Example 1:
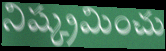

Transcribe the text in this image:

నిష్క్రమించు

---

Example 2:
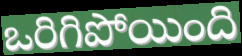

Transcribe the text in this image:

ఒరిగిపోయింది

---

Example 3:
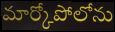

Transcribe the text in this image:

మార్కోపోలోను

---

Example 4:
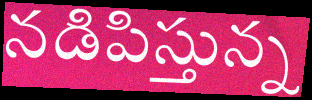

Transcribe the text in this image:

నడిపిస్తున్న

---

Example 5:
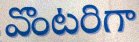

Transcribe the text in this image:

వొంటరిగా